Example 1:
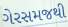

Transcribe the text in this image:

ગેરસમજથી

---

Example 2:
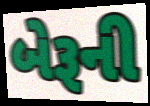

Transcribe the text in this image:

બેરૂની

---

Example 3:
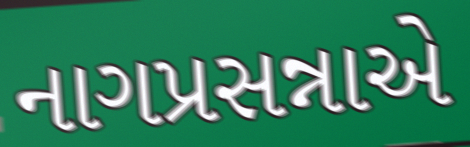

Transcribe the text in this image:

નાગપ્રસન્નાએ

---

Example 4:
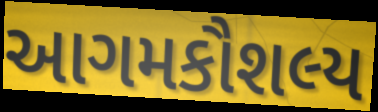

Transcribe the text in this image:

આગમકૌશલ્ય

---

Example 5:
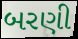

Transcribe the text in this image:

બરણી